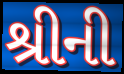
શ્રીની